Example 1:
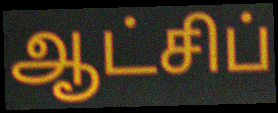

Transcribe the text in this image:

ஆட்சிப்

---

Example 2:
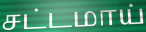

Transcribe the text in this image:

சட்டமாய்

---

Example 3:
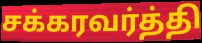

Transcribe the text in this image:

சக்கரவர்த்தி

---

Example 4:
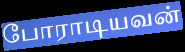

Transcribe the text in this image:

போராடியவன்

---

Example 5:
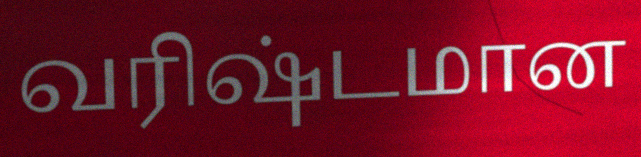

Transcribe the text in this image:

வரிஷ்டமான